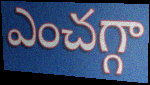
ఎంచగ్గా